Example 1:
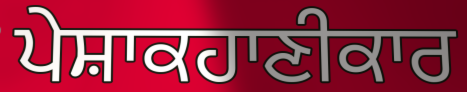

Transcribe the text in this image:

ਪੇਸ਼ਾਕਹਾਣੀਕਾਰ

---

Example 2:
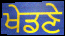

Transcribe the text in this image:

ਖੇਡਣੇ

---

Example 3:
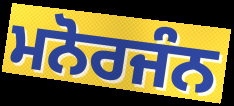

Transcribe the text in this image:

ਮਨੋਰਜੰਨ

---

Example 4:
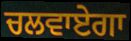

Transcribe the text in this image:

ਚਲਵਾਏਗਾ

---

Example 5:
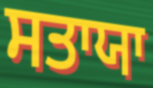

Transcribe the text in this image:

ਸਤਾਯਾ